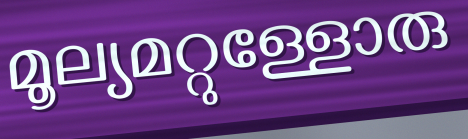
മൂല്യമറ്റുള്ളോരു